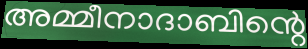
അമ്മീനാദാബിന്റെ